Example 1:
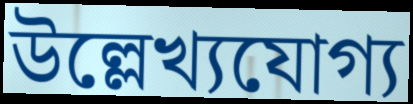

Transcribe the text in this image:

উল্লেখ্যযোগ্য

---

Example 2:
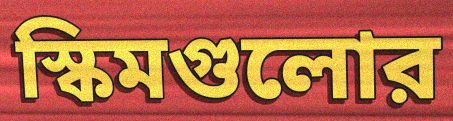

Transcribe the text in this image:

স্কিমগুলোর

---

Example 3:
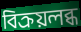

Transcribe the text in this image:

বিক্রয়লব্ধ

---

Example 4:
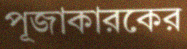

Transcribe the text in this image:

পূজাকারকের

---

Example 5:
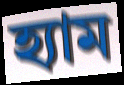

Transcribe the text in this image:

হ্যাম